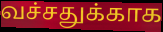
வச்சதுக்காக